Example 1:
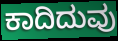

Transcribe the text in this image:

ಕಾದಿದುವು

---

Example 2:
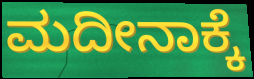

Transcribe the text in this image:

ಮದೀನಾಕ್ಕೆ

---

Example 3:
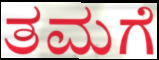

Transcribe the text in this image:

ತಮಗೆ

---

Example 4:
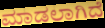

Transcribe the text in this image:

ಮಾಡಲಾಗಿದೆ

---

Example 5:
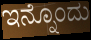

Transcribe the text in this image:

ಇನ್ನೊಂದು